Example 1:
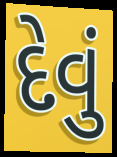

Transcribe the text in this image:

દેવું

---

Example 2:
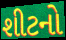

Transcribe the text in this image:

શીટનો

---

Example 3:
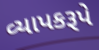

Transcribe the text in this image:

વ્યાપકરૂપે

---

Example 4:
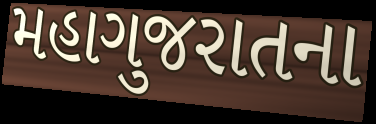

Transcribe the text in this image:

મહાગુજરાતના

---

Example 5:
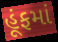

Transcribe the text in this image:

હૂંફમાં